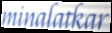
minalatkar